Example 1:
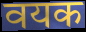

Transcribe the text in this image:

वयक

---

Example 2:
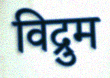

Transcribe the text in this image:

विद्रुम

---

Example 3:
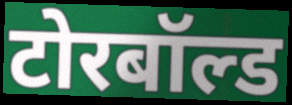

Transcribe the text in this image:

टोरबॉल्ड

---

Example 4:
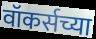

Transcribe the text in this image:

वॉकर्सच्या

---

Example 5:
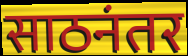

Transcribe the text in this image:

साठनंतर